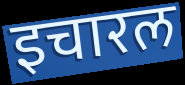
इचारल